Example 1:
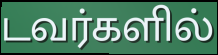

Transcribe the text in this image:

டவர்களில்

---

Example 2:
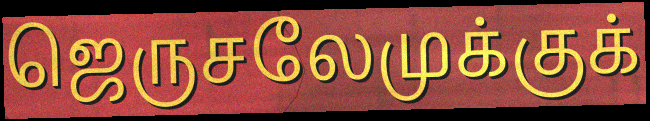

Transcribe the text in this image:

ஜெருசலேமுக்குக்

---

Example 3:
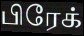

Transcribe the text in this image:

பிரேக்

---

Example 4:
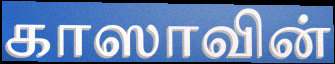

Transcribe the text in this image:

காஸாவின்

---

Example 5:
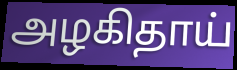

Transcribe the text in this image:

அழகிதாய்